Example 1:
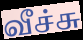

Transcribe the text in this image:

வீச்சு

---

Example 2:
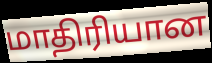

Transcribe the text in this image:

மாதிரியான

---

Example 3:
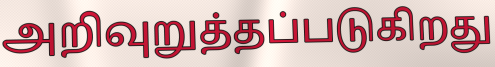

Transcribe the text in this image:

அறிவுறுத்தப்படுகிறது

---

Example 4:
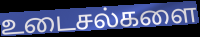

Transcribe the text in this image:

உடைசல்களை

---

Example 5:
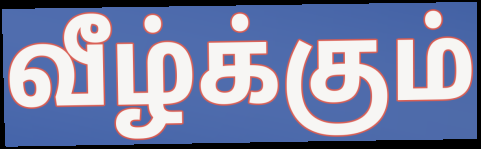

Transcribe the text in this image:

வீழ்க்கும்